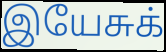
இயேசுக்